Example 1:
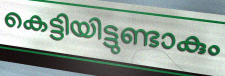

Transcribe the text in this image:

കെട്ടിയിട്ടുണ്ടാകും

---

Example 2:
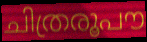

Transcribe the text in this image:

ചിത്രരൂപൗ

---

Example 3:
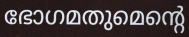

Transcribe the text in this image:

ഭോഗമതുമെന്റെ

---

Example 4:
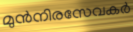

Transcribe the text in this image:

മുൻനിരസേവകർ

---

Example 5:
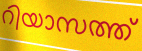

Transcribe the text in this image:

റിയാസത്ത്